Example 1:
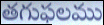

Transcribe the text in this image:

తగుఫలము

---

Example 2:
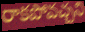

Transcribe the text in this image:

రాకపోవచ్చని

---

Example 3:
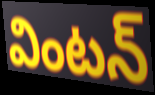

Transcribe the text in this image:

వింటన్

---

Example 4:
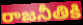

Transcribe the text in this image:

రాజనీతికి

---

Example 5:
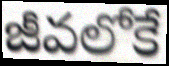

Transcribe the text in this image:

జీవలోకే